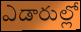
ఎడారుల్లో